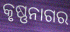
କୃଷ୍ଣନାଗର